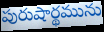
పురుషార్థమును